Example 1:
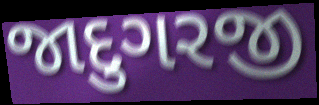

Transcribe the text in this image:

જાદુગરજી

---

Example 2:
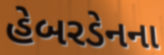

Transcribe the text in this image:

હેબરડેનના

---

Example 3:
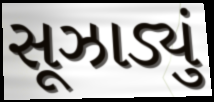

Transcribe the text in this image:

સૂઝાડ્યું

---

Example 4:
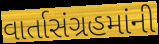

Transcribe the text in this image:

વાર્તાસંગ્રહમાંની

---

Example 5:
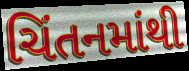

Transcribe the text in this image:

ચિંતનમાંથી